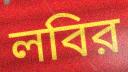
লবির